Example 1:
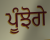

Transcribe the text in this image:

ਪੂੰਝੋਗੇ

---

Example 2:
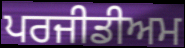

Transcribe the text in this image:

ਪਰਜੀਡੀਅਮ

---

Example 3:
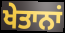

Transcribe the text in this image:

ਖੇਤਾਨਾਂ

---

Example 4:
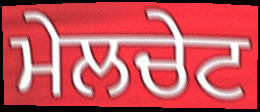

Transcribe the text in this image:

ਮੇਲਚੇਟ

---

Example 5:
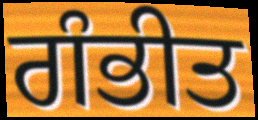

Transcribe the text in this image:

ਗੰਭੀਤ